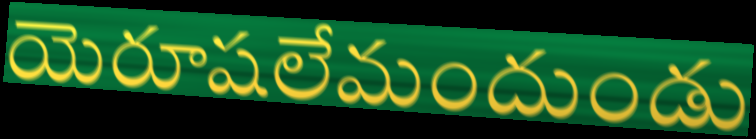
యెరూషలేమందుండు